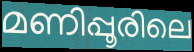
മണിപ്പൂരിലെ